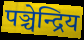
पञ्चेन्द्रिय